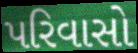
પરિવાસો